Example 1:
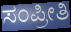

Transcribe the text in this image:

ಸಂಪ್ರೀತಿ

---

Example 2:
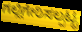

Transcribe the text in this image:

ಗಲ್ಲಿಗೇರಿಸಲ್ಪಟ್ಟ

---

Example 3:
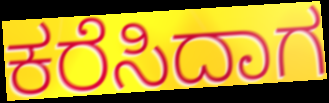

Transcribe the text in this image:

ಕರೆಸಿದಾಗ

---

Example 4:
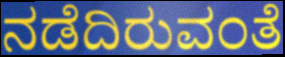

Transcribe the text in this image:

ನಡೆದಿರುವಂತೆ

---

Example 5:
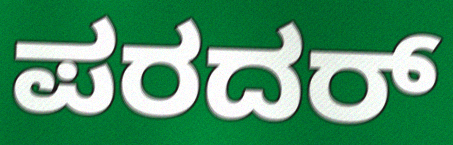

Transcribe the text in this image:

ಪರದರ್